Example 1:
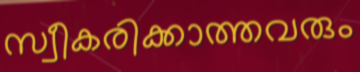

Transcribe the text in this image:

സ്വീകരിക്കാത്തവരും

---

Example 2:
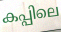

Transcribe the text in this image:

കപ്പിലെ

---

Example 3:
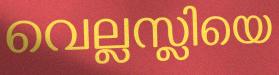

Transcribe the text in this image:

വെല്ലസ്ലിയെ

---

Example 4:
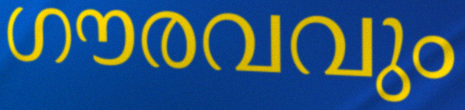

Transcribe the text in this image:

ഗൗരവവും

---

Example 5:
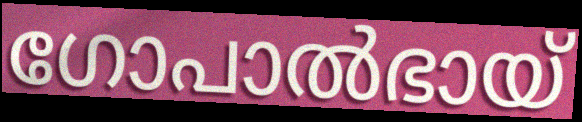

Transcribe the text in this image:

ഗോപാൽഭായ്